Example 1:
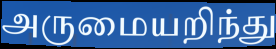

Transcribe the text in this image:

அருமையறிந்து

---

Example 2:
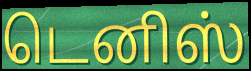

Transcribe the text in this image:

டெனிஸ்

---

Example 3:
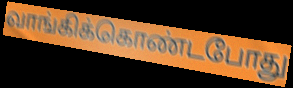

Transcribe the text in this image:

வாங்கிக்கொண்டபோது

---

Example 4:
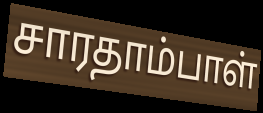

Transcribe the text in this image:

சாரதாம்பாள்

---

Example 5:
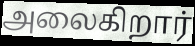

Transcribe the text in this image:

அலைகிறார்